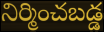
నిర్మించబడ్డ